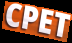
CPET